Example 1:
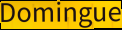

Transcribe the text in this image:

Domingue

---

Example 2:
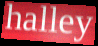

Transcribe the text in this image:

halley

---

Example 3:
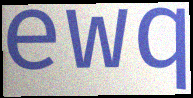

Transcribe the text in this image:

ewq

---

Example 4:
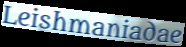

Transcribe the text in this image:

Leishmaniadae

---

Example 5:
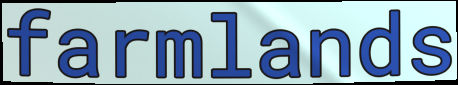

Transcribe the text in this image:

farmlands